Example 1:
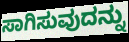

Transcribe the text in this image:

ಸಾಗಿಸುವುದನ್ನು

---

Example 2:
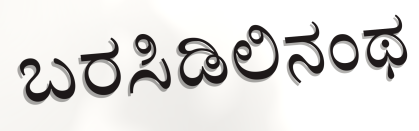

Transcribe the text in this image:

ಬರಸಿಡಿಲಿನಂಥ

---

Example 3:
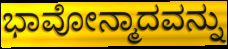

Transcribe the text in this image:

ಭಾವೋನ್ಮಾದವನ್ನು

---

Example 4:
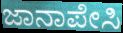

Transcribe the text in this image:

ಜಾನಾಪೇಸಿ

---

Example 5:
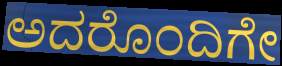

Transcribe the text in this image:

ಅದರೊಂದಿಗೇ